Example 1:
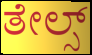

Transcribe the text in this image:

ತೇಲ್ಸ್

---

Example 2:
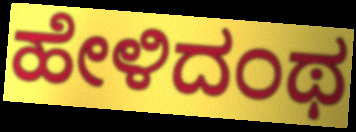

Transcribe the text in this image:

ಹೇಳಿದಂಥ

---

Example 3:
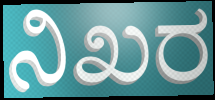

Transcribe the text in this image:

ನಿಖರ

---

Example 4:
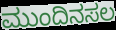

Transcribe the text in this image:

ಮುಂದಿನಸಲ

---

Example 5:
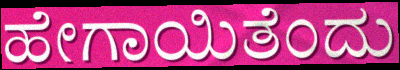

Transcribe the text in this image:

ಹೇಗಾಯಿತೆಂದು